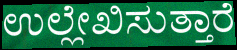
ಉಲ್ಲೇಖಿಸುತ್ತಾರೆ